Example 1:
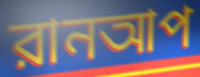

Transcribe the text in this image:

রানআপ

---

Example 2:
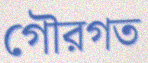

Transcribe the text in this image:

গৌরগত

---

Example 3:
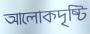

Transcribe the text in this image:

আলোকদৃষ্টি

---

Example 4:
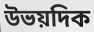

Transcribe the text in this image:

উভয়দিক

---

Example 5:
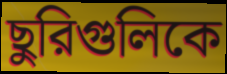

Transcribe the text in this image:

ছুরিগুলিকে